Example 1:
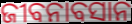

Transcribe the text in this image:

ଜୀବନାବସାନ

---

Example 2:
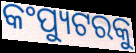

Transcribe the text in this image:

କଂପ୍ୟୁଟରକୁ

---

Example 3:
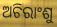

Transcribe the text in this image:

ଅଚିରାଂଶୁ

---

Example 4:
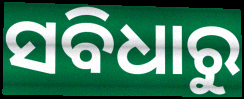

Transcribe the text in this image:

ସବିଧାରୁ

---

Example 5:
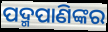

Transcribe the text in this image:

ପଦ୍ମପାଣିଙ୍କର